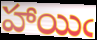
హాయిఁ